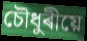
চৌধুৰীয়ে